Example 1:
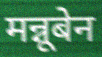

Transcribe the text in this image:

मन्नूबेन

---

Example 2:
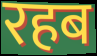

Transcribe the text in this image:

रहब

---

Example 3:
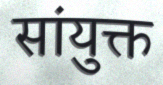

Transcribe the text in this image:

सांयुक्त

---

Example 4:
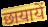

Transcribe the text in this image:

छायायें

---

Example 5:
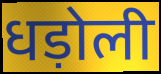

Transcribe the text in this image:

धड़ोली